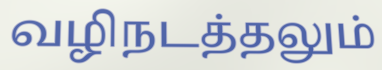
வழிநடத்தலும்